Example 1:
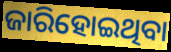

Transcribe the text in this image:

ଜାରିହୋଇଥିବା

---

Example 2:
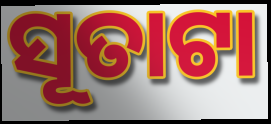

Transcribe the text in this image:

ସୂତାଟା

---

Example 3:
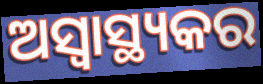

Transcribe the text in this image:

ଅସ୍ୱାସ୍ଥ୍ୟକର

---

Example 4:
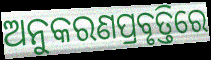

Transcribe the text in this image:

ଅନୁକରଣପ୍ରବୃତ୍ତିରେ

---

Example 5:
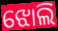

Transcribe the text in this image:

ଝୋଲି